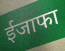
ईजाफा